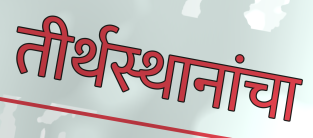
तीर्थस्थानांचा